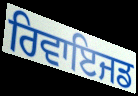
ਰਿਵਾਇਜਡ